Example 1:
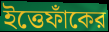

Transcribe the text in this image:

ইত্তেফাঁকের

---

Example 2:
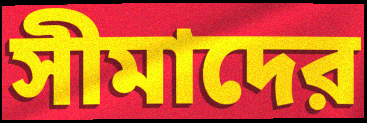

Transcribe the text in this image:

সীমাদের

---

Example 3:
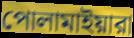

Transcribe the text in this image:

পোলামাইয়ারা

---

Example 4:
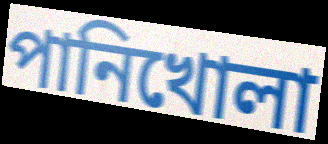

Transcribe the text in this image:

পানিখোলা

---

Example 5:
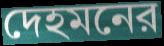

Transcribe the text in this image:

দেহমনের